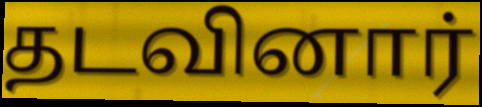
தடவினார்